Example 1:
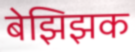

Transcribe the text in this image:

बेझिझक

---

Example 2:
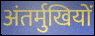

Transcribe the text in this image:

अंतर्मुखियों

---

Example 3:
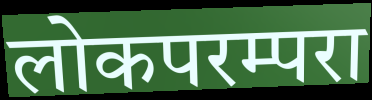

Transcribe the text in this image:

लोकपरम्परा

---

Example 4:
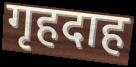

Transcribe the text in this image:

गृहदाह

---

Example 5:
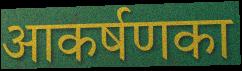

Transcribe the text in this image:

आकर्षणका